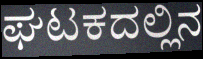
ಘಟಕದಲ್ಲಿನ